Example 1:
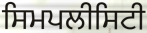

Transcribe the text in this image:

ਸਿਮਪਲੀਸਿਟੀ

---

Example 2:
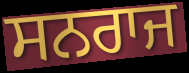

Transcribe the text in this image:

ਸਨਰਾਜ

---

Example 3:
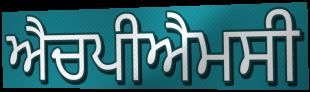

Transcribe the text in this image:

ਐਚਪੀਐਮਸੀ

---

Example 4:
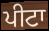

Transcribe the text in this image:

ਪੀਟਾ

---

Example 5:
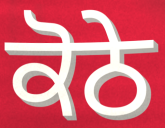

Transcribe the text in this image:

ਕੋਠੇ